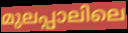
മുലപ്പാലിലെ